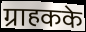
ग्राहकके